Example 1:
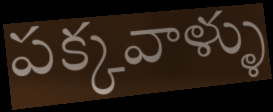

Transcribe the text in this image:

పక్కవాళ్ళు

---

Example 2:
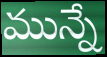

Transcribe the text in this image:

మున్నే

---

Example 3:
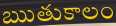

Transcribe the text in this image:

ఋతుకాలం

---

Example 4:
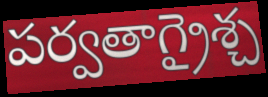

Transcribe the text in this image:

పర్వతాగ్రైశ్చ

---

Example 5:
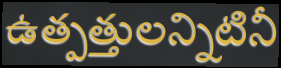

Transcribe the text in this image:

ఉత్పత్తులన్నిటినీ